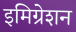
इमिग्रेशन